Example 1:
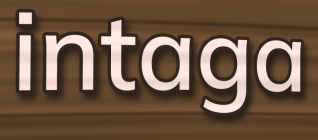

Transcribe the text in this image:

intaga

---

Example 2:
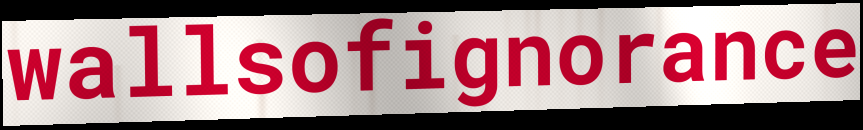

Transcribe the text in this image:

wallsofignorance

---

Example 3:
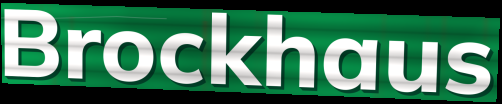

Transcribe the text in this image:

Brockhaus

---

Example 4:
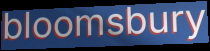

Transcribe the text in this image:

bloomsbury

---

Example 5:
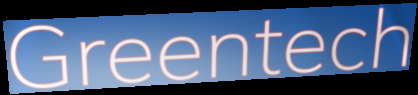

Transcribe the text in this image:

Greentech